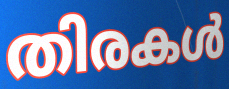
തിരകൾ